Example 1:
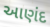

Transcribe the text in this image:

આણંદ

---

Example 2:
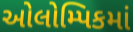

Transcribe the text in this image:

ઓલોમ્પિકમાં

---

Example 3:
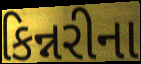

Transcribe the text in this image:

કિન્નરીના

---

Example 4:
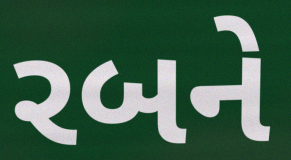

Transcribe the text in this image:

રબને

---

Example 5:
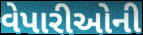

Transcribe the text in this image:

વેપારીઓની